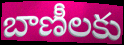
బాణీలకు